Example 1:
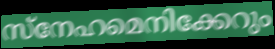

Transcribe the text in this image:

സ്നേഹമെനിക്കേറും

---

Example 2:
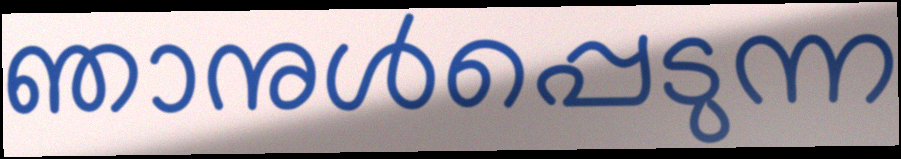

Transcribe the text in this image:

ഞാനുൾപ്പെടുന്ന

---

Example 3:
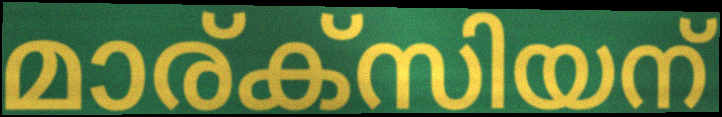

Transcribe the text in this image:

മാര്ക്സിയന്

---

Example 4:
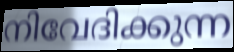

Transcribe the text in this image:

നിവേദിക്കുന്ന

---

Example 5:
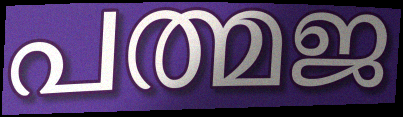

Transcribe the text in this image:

പത്മജ